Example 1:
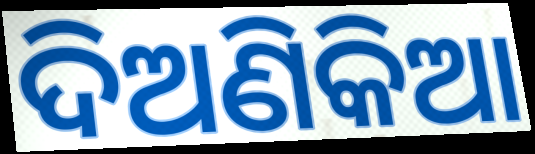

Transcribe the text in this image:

ଦିଅଣିକିଆ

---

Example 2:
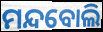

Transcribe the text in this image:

ମନ୍ଦବୋଲି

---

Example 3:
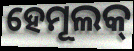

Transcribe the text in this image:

ହେମୂଲକ୍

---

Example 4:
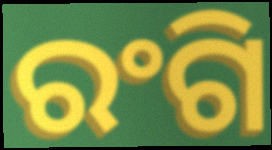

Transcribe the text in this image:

ରଂଗି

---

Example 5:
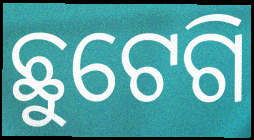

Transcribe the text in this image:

ଛୁଟେଗି